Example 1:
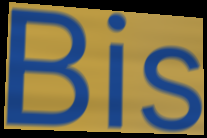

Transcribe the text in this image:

Bis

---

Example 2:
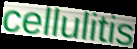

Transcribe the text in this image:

cellulitis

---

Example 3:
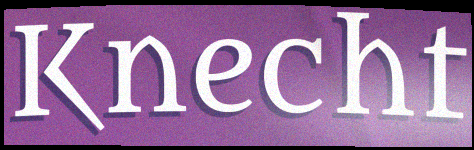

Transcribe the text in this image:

Knecht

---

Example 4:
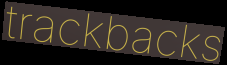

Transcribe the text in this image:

trackbacks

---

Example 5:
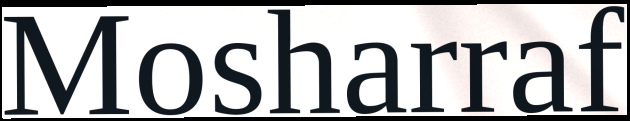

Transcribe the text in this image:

Mosharraf